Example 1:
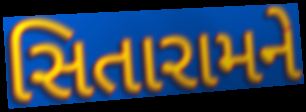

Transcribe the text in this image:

સિતારામને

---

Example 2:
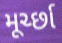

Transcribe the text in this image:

મૂર્ચ્છા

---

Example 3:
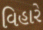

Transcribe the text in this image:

વિહારે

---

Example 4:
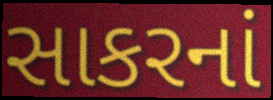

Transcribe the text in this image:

સાકરનાં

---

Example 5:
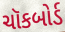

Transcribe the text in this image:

ચૉકબોર્ડ